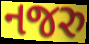
નજરુ